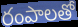
రంపాలతో